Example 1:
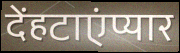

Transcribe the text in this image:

देंहटाएंप्यार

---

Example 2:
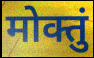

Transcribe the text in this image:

मोक्तुं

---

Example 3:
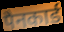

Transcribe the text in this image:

पैनकार्ड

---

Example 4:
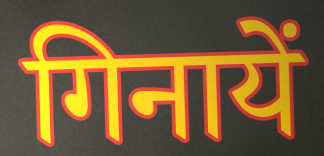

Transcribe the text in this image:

गिनायें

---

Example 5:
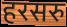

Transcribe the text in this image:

हरसरु